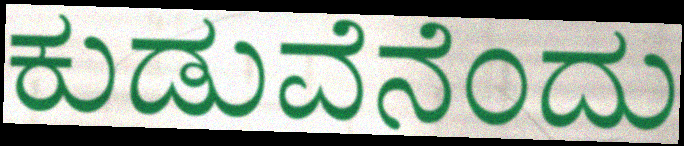
ಕುಡುವೆನೆಂದು